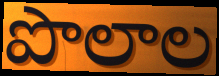
పొలాల